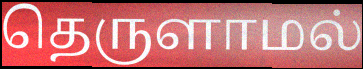
தெருளாமல்